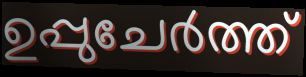
ഉപ്പുചേർത്ത്